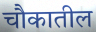
चौकातील